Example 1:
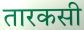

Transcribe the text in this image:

तारकसी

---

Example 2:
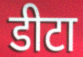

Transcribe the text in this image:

डीटा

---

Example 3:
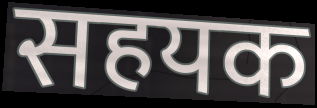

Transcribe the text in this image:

सहयक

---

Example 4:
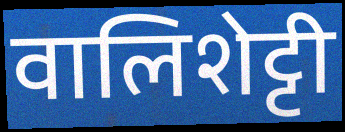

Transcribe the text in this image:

वालिशेट्टी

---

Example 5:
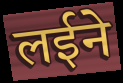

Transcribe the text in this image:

लईने